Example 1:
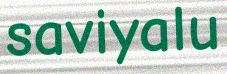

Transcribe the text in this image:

saviyalu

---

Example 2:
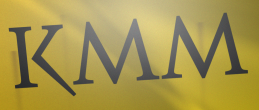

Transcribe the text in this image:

KMM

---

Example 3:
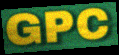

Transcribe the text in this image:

GPC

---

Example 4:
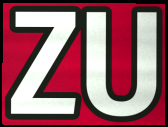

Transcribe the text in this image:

ZU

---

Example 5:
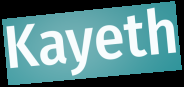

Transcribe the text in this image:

Kayeth